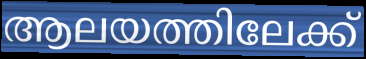
ആലയത്തിലേക്ക്